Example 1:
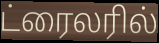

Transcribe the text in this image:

ட்ரைலரில்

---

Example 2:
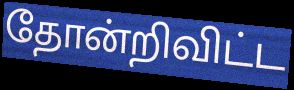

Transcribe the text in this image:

தோன்றிவிட்ட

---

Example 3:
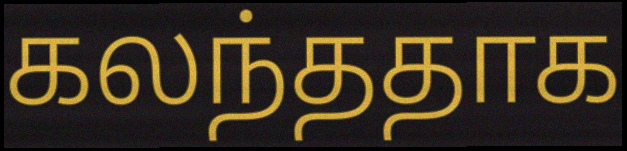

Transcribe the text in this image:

கலந்ததாக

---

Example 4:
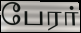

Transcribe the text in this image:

பேரர்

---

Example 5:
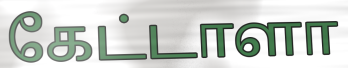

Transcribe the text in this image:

கேட்டாளா